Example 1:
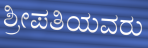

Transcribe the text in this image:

ಶ್ರೀಪತಿಯವರು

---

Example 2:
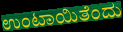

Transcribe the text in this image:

ಉಂಟಾಯಿತೆಂದು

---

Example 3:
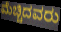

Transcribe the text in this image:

ಮೆಚ್ಚಿದವರು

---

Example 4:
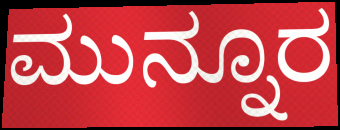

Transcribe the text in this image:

ಮುನ್ನೂರ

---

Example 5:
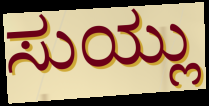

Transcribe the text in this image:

ಸುಯ್ಲು